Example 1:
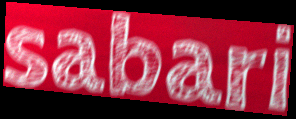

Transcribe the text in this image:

sabari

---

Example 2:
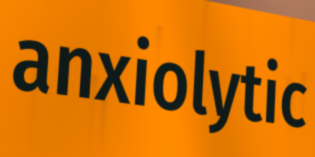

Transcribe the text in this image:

anxiolytic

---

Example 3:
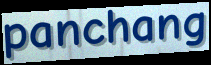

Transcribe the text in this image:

panchang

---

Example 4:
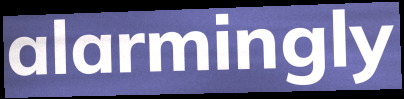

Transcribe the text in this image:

alarmingly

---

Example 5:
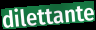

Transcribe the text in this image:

dilettante